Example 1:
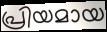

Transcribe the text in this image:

പ്രിയമായ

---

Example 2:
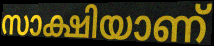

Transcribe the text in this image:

സാക്ഷിയാണ്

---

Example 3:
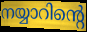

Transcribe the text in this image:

നയ്യാറിന്റെ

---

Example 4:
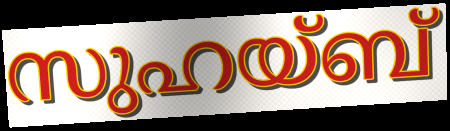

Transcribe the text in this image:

സുഹയ്ബ്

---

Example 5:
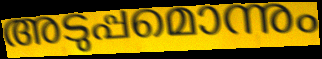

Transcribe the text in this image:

അടുപ്പമൊന്നും